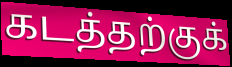
கடத்தற்குக்